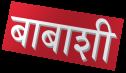
बाबाशी